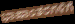
ಭಾಷಾಂತರಗಳಿಗೆ